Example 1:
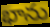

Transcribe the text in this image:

భాను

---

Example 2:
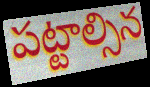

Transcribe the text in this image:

పట్టాల్సిన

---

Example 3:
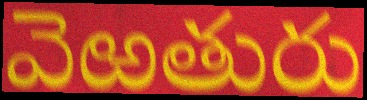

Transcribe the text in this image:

వెఱతురు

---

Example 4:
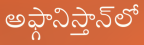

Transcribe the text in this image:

అఫ్గానిస్తాన్‌లో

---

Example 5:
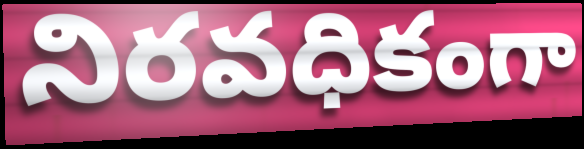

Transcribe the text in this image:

నిరవధికంగా